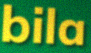
bila